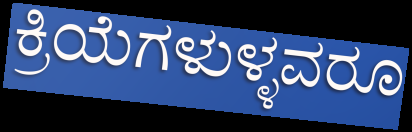
ಕ್ರಿಯೆಗಳುಳ್ಳವರೂ